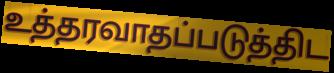
உத்தரவாதப்படுத்திட